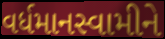
વર્ધમાનસ્વામીને